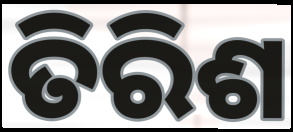
ତିରିଶ